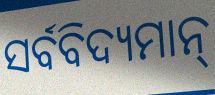
ସର୍ବବିଦ୍ୟମାନ୍